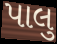
પાલુ